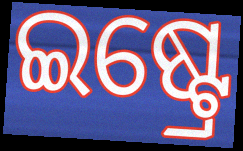
ଇଷ୍ଟ୍ରେ